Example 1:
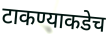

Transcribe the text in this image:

टाकण्याकडेच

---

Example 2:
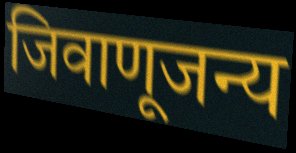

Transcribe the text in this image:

जिवाणूजन्य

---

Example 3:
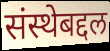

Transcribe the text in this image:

संस्थेबद्दल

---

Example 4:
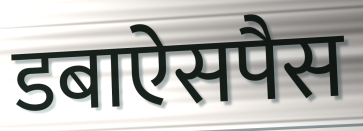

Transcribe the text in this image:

डबाऐसपैस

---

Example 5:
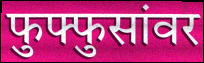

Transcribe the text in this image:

फुफ्फुसांवर